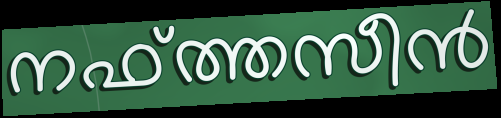
നഫ്ത്തസീൻ